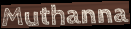
Muthanna